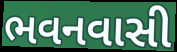
ભવનવાસી